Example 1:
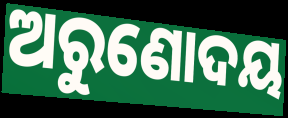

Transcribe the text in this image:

ଅରୁଣୋଦୟ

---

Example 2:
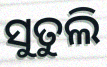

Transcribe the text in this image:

ସୁତୁଲି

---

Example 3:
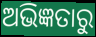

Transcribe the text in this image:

ଅଭିଜ୍ଞତାରୁ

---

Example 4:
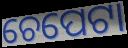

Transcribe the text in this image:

ଚେପେଟା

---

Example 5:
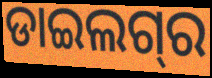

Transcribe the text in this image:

ଡାଇଲଗ୍‌ର